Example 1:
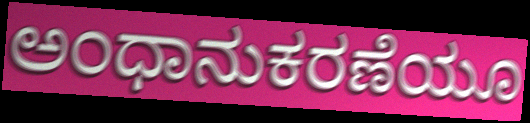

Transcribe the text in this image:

ಅಂಧಾನುಕರಣೆಯೂ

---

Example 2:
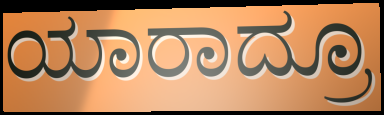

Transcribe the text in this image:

ಯಾರಾದ್ರೂ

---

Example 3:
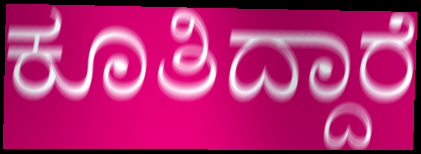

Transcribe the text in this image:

ಕೂತಿದ್ದಾರೆ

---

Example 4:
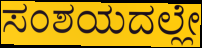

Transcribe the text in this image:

ಸಂಶಯದಲ್ಲೇ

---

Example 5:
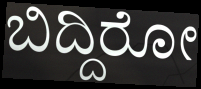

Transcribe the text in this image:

ಬಿದ್ದಿರೋ